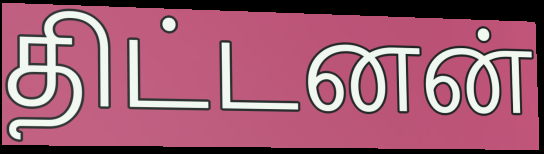
திட்டனன்